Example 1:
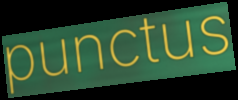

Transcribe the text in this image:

punctus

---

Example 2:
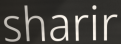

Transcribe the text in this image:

sharir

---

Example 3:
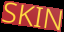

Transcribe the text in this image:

SKIN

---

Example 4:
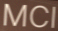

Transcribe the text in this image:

MCI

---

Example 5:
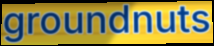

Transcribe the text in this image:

groundnuts